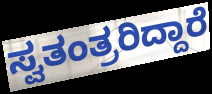
ಸ್ವತಂತ್ರರಿದ್ದಾರೆ